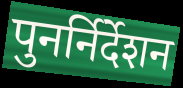
पुनर्निर्देशन